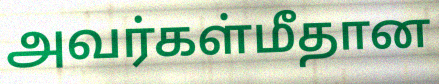
அவர்கள்மீதான